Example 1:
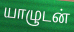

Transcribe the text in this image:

யாழுடன்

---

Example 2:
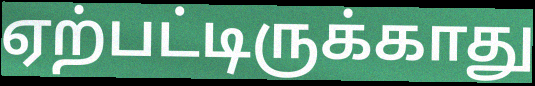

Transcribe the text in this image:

ஏற்பட்டிருக்காது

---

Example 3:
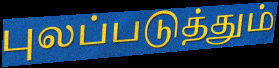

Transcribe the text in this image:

புலப்படுத்தும்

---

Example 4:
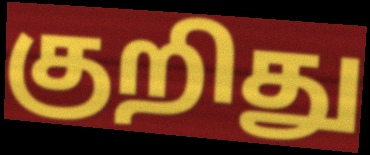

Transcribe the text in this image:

குறிது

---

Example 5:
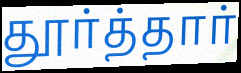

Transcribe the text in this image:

தூர்த்தார்